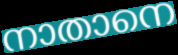
നാതാനെ